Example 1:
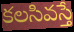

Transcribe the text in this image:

కలసివస్తే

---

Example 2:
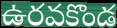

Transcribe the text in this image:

ఉరవకొండ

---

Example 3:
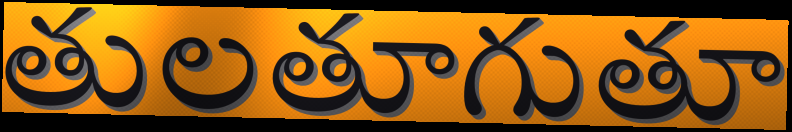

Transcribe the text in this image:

తులతూగుతూ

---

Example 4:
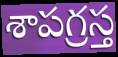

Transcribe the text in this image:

శాపగ్రస్త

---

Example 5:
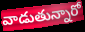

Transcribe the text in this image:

వాడుతున్నారో